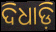
ଦିଧାଡ଼ି